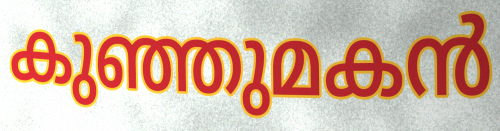
കുഞ്ഞുമകൻ